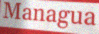
Managua